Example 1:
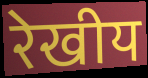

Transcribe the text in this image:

रेखीय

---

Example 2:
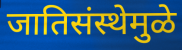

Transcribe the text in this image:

जातिसंस्थेमुळे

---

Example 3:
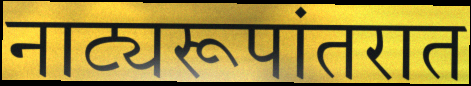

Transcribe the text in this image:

नाट्यरूपांतरात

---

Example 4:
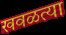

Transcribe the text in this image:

खवळत्या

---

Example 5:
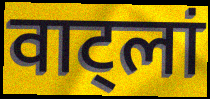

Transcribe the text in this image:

वाट्लां